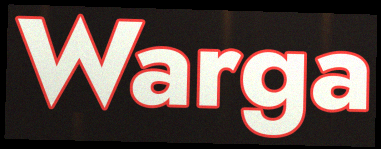
Warga